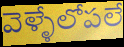
వెళ్ళేలోపలే